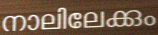
നാലിലേക്കും